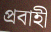
প্রবাহী